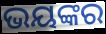
ଭୟଙ୍କର